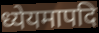
ध्येयमापदि